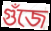
গুঁজে